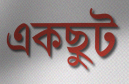
একছুট